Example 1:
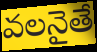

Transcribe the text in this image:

వలనైతే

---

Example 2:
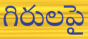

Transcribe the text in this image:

గిరులపై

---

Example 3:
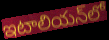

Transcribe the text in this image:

ఇటాలియన్‌లో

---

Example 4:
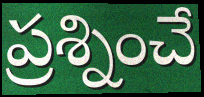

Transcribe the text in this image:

ప్రశ్నించే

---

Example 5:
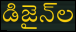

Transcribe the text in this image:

డిజైన్‌ల